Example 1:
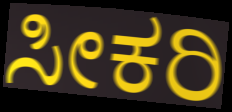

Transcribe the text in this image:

ಸೀಕರಿ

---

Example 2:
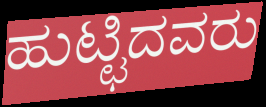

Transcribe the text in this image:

ಹುಟ್ಟಿದವರು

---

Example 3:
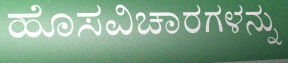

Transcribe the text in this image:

ಹೊಸವಿಚಾರಗಳನ್ನು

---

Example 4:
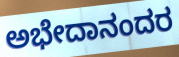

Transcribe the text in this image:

ಅಭೇದಾನಂದರ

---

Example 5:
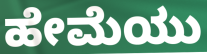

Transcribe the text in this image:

ಹೇಮೆಯು